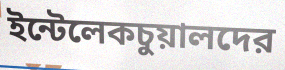
ইন্টেলেকচুয়ালদের